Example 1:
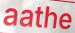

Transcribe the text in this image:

aathe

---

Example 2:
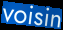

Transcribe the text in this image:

voisin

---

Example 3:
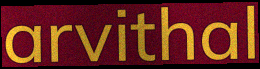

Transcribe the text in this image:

arvithal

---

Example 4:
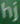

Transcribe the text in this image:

hj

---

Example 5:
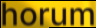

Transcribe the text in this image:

horum